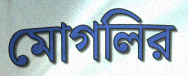
মোগলির